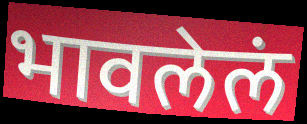
भावलेलं